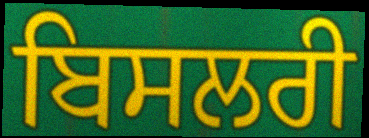
ਬਿਸਲਰੀ